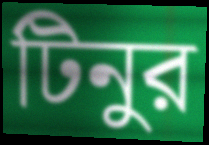
টিনুর